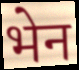
भेन